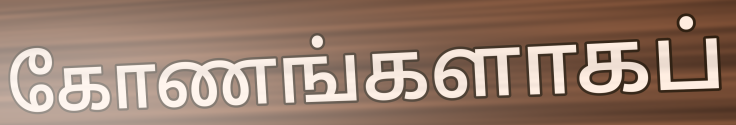
கோணங்களாகப்